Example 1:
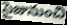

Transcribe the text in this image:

సైజునుంచి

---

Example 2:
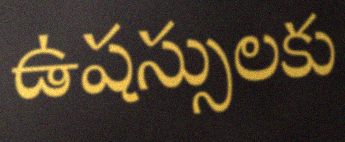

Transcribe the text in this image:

ఉషస్సులకు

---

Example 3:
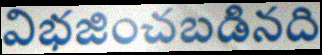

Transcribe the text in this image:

విభజించబడినది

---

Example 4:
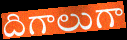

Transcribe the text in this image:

దిగాలుగా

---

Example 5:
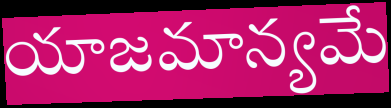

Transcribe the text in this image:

యాజమాన్యమే